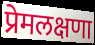
प्रेमलक्षणा